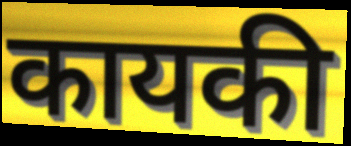
कायकी